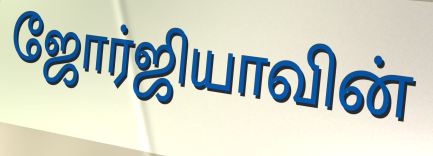
ஜோர்ஜியாவின்